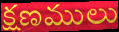
క్షణములు